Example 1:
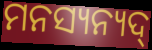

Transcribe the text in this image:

ମନସ୍ୟନ୍ୟଦ୍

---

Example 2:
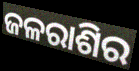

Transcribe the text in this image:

ଜଳରାଶିର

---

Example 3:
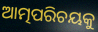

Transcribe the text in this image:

ଆତ୍ମପରିଚୟକୁ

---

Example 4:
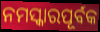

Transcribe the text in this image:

ନମସ୍କାରପୂର୍ବକ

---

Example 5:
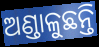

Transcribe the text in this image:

ଅଣ୍ଡାଳୁଛନ୍ତି